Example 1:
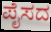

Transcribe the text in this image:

ಪೈಸದ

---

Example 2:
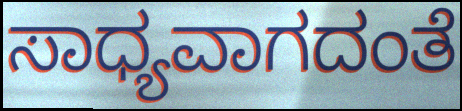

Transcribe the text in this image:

ಸಾಧ್ಯವಾಗದಂತೆ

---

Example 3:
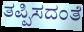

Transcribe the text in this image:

ತಪ್ಪಿಸದಂತೆ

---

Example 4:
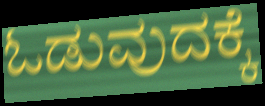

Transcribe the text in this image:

ಓಡುವುದಕ್ಕೆ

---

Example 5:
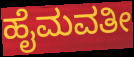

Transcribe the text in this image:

ಹೈಮವತೀ